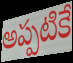
అప్పటికే